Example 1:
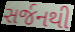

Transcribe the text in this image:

સર્જનથી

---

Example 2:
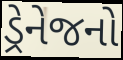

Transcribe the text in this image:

ડ્રેનેજનો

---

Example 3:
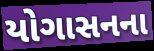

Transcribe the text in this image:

યોગાસનના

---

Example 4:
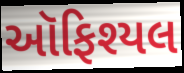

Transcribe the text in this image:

ઑફિશ્યલ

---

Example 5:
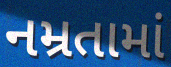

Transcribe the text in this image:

નમ્રતામાં